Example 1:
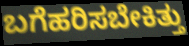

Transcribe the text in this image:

ಬಗೆಹರಿಸಬೇಕಿತ್ತು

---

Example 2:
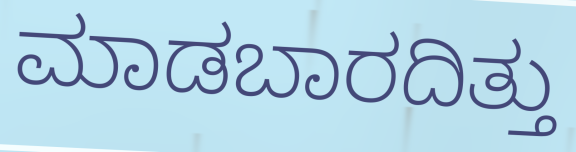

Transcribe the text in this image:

ಮಾಡಬಾರದಿತ್ತು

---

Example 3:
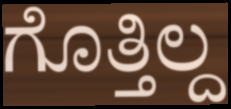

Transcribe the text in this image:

ಗೊತ್ತಿಲ್ದ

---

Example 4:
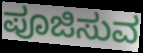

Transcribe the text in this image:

ಪೂಜಿಸುವ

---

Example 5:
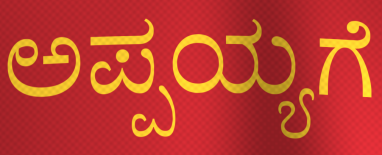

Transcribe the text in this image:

ಅಪ್ಪಯ್ಯಗೆ